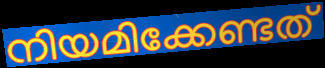
നിയമിക്കേണ്ടത്